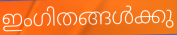
ഇംഗിതങ്ങൾക്കു